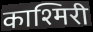
काश्मिरी